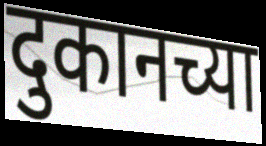
दुकानच्या